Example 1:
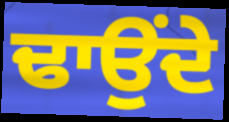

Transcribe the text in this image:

ਢਾਉਂਦੇ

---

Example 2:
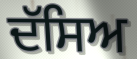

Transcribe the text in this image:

ਦੱਸਿਅ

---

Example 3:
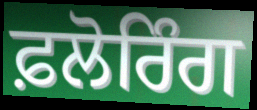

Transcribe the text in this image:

ਫ਼ਲੋਰਿੰਗ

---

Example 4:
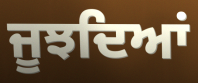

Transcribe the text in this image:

ਜੂਝਦਿਆਂ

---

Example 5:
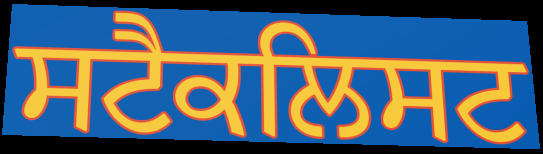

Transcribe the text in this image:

ਸਟੈਕਲਿਸਟ